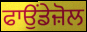
ਫਾਉਂਡੇਜ਼ੋਲ